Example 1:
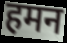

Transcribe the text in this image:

हमन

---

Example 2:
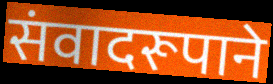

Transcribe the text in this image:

संवादरूपाने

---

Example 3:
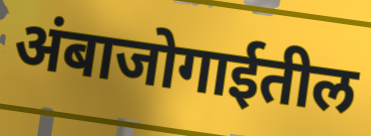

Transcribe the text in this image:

अंबाजोगाईतील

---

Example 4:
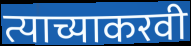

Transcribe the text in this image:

त्याच्याकरवी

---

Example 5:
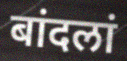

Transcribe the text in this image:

बांदलां